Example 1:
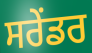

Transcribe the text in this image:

ਸਰੇਂਡਰ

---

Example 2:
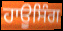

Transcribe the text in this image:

ਹਾਊਸਿੰਗ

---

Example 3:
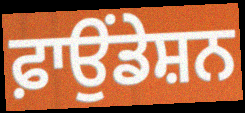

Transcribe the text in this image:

ਫ਼ਾਉਂਡੇਸ਼ਨ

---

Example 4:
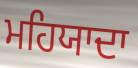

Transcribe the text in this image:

ਮਹਿਯਾਦਾ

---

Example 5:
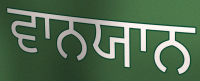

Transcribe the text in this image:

ਵਾਨਯਾਨ